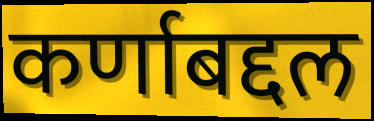
कर्णाबद्दल